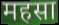
महसा